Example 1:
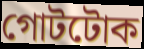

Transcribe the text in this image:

গোটটোক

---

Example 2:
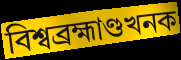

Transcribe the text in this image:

বিশ্বব্ৰহ্মাণ্ডখনক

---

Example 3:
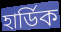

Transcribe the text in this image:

হাৰ্ডিক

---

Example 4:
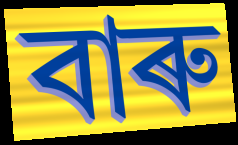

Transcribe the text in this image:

বাৰু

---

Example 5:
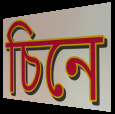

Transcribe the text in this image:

চিনে